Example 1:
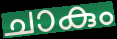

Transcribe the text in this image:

ചാകും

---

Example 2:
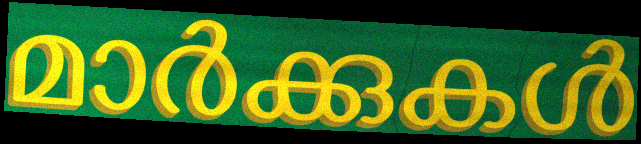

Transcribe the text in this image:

മാർക്കുകൾ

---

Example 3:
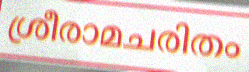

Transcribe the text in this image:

ശ്രീരാമചരിതം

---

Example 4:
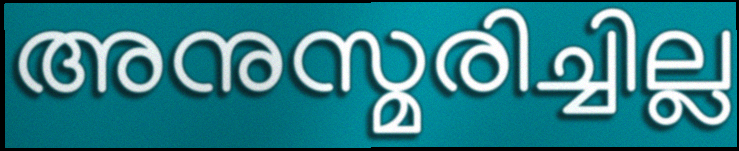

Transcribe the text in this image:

അനുസ്മരിച്ചില്ല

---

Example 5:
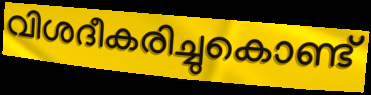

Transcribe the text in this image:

വിശദീകരിച്ചുകൊണ്ട്